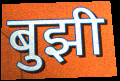
बुझी